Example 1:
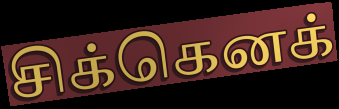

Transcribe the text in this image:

சிக்கெனக்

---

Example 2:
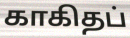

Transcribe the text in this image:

காகிதப்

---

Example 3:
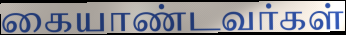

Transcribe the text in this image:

கையாண்டவர்கள்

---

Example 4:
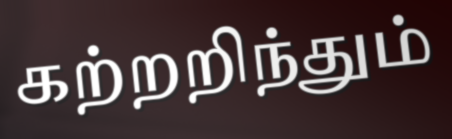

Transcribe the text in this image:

கற்றறிந்தும்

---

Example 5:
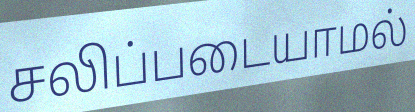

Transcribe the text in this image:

சலிப்படையாமல்